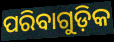
ପରିବାଗୁଡ଼ିକ